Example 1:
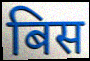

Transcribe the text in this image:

बिस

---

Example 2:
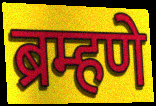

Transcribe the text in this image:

ब्रम्हणे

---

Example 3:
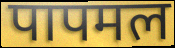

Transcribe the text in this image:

पापमल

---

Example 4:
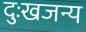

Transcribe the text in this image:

दुःखजन्य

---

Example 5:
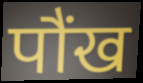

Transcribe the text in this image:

पौंख